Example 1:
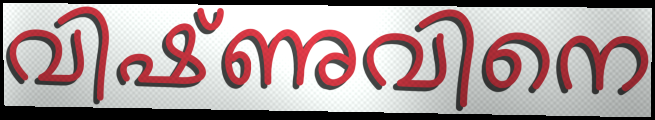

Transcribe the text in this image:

വിഷ്‌ണുവിനെ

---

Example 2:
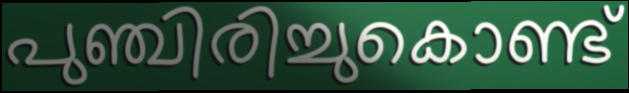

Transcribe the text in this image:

പുഞ്ചിരിച്ചുകൊണ്ട്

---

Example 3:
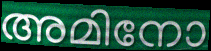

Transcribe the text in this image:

അമിനോ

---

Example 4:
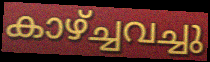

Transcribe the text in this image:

കാഴ്ച്ചവച്ചു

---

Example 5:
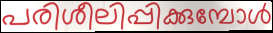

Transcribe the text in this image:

പരിശീലിപ്പിക്കുമ്പോൾ